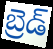
బ్రెడ్